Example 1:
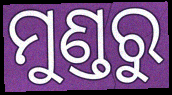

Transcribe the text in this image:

ମୁଣ୍ଡରୁ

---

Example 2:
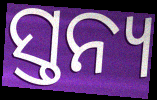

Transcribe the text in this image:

ସ୍ତନ୍ୟ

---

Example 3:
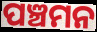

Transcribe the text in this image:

ପଞ୍ଚମନ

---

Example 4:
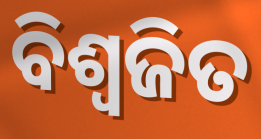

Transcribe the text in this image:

ବିଶ୍ଵଜିତ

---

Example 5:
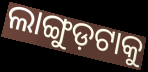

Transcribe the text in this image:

ଲାଙ୍ଗୁଡ଼ଟାକୁ